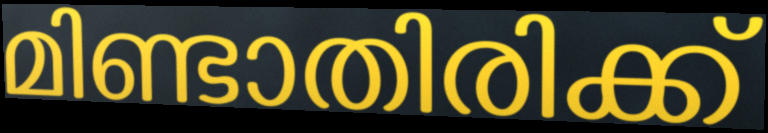
മിണ്ടാതിരിക്ക്